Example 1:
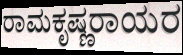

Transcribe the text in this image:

ರಾಮಕೃಷ್ಣರಾಯರ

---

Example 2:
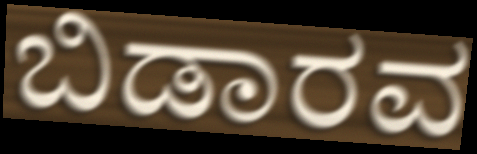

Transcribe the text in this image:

ಬಿಡಾರವ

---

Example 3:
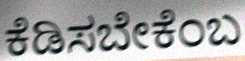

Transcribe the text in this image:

ಕೆಡಿಸಬೇಕೆಂಬ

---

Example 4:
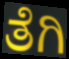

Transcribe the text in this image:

ತೆಗಿ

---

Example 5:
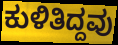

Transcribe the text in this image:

ಕುಳಿತಿದ್ದವು